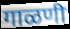
गाळणी